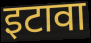
इटावा